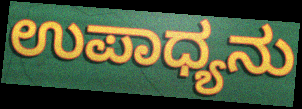
ಉಪಾಧ್ಯನು